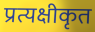
प्रत्यक्षीकृत